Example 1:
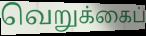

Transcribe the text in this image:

வெறுக்கைப்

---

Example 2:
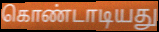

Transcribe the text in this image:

கொண்டாடியது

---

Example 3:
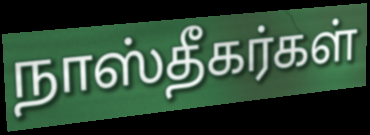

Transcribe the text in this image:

நாஸ்தீகர்கள்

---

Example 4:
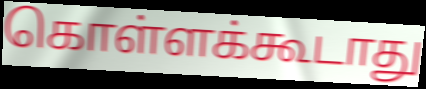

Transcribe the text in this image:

கொள்ளக்கூடாது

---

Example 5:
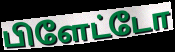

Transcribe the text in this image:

பிளேட்டோ